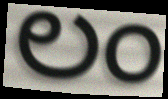
ಲಂ